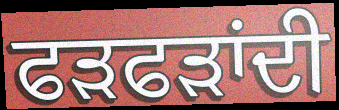
ਫੜਫੜਾਂਦੀ